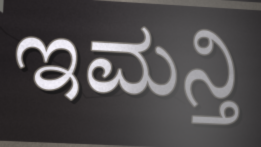
ಇಮನ್ತಿ